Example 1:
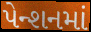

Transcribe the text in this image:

પેન્શનમાં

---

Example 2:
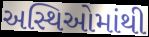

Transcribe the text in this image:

અસ્થિઓમાંથી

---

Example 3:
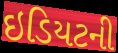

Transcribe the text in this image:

ઇડિયટની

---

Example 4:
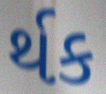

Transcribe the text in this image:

ર્થક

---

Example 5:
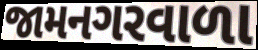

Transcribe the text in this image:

જામનગરવાળા